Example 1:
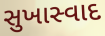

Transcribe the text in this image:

સુખાસ્વાદ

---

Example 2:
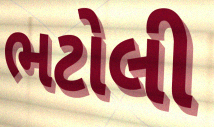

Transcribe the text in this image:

ભટોલી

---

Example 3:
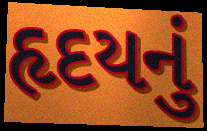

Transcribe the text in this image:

હૃદયનું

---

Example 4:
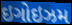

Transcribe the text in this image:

ઇગોઇઝમ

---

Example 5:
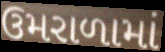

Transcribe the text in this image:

ઉમરાળામાં